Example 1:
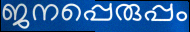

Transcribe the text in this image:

ജനപ്പെരുപ്പം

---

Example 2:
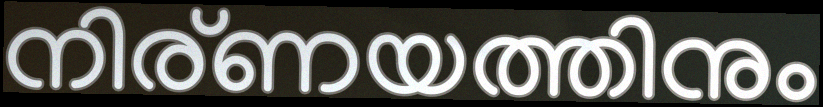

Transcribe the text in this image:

നിര്ണയത്തിനും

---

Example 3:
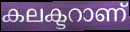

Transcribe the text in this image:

കലക്ടറാണ്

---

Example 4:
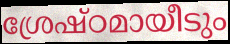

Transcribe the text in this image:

ശ്രേഷ്ഠമായീടും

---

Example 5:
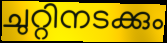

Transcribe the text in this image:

ചുറ്റിനടക്കും